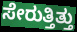
ಸೇರುತ್ತಿತ್ತು